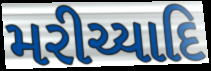
મરીચ્યાદિ